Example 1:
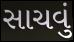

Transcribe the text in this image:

સાચવું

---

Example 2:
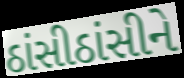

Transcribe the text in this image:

ઠાંસીઠાંસીને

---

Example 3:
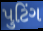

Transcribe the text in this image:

પુટિંગ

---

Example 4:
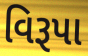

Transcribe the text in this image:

વિરૂપા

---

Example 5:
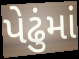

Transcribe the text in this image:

પેઢુંમાં